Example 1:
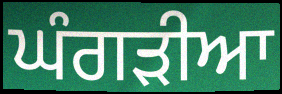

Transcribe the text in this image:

ਘੰਗੜੀਆ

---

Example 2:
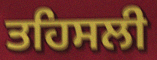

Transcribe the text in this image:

ਤਹਿਸਲੀ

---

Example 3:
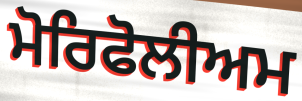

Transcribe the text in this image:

ਮੋਰਿਫੋਲੀਅਮ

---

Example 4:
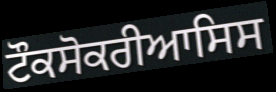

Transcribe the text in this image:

ਟੌਕਸੋਕਰੀਆਸਿਸ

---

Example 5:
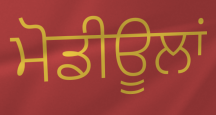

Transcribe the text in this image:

ਮੋਡੀਊਲਾਂ